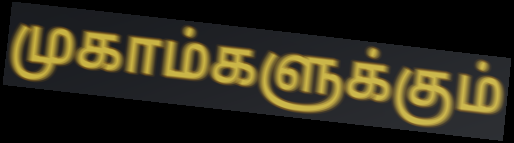
முகாம்களுக்கும்